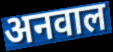
अनवाल